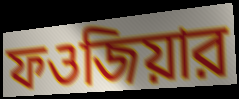
ফওজিয়ার